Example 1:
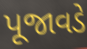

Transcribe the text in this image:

પૂજાવડે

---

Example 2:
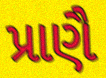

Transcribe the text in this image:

પ્રાણૈ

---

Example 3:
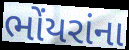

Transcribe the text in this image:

ભોંયરાંના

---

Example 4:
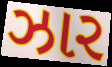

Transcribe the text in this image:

ઝાર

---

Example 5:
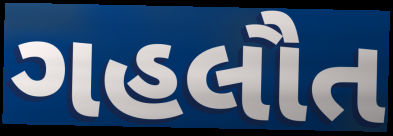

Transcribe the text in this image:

ગહલૌત